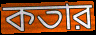
কতার